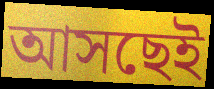
আসছেই